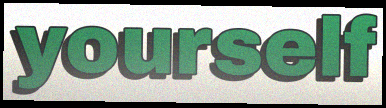
yourself